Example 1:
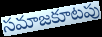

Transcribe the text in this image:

సమాజకూటపు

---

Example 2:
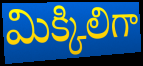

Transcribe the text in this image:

మిక్కిలిగా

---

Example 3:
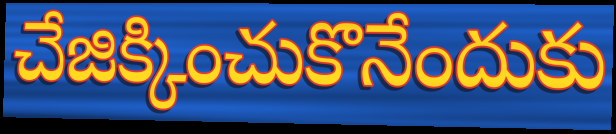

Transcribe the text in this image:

చేజిక్కించుకొనేందుకు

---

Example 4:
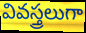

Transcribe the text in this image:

వివస్త్రలుగా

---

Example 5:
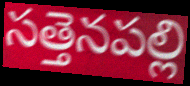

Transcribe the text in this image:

సత్తెనపల్లి